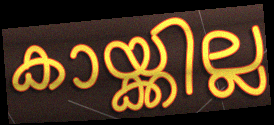
കായ്ക്കില്ല